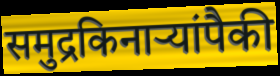
समुद्रकिनाऱ्यांपैकी